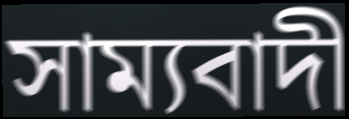
সাম্যবাদী